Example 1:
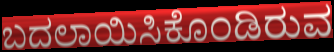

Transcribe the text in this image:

ಬದಲಾಯಿಸಿಕೊಂಡಿರುವ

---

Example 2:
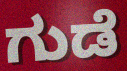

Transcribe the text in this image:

ಗುಡೆ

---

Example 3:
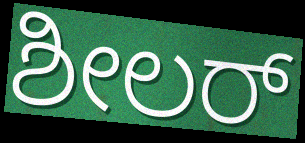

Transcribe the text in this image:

ಶೀಲರ್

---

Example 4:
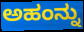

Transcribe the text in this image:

ಅಹಂನ್ನು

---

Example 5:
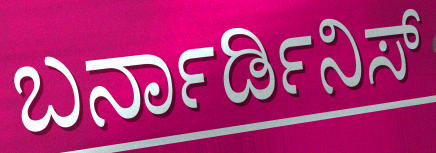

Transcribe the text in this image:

ಬರ್ನಾರ್ಡಿನಿಸ್